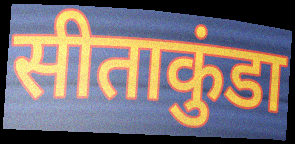
सीताकुंडा